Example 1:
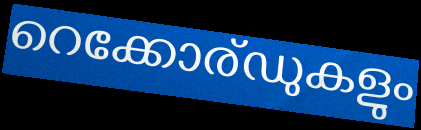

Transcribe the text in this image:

റെക്കോര്ഡുകളും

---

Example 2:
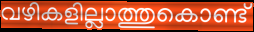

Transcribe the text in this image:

വഴികളില്ലാത്തുകൊണ്ട്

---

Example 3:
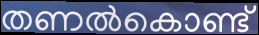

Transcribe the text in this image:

തണൽകൊണ്ട്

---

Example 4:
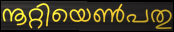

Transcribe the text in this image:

നൂറ്റിയെൺപതു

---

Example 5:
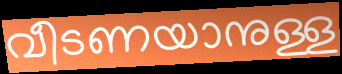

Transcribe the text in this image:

വീടണയാനുള്ള